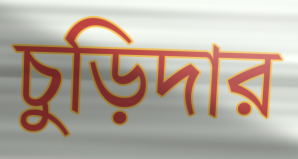
চুড়িদার